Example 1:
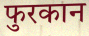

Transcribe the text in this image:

फुरकान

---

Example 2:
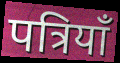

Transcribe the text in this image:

पत्रियाँ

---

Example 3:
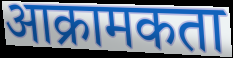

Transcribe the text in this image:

आक्रामकता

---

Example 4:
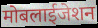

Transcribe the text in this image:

मोबलाईजेशन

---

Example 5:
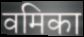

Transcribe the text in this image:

वमिका